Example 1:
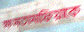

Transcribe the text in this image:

ক্ষমতামাফিয়াকে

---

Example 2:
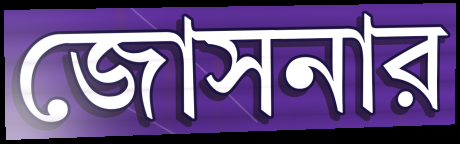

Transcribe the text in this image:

জোসনার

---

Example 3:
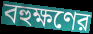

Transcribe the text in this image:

বহুক্ষণের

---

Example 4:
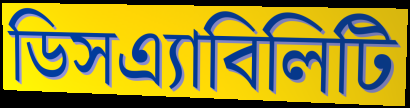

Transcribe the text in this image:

ডিসএ্যাবিলিটি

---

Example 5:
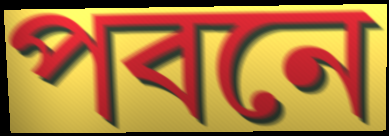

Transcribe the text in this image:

পবনে